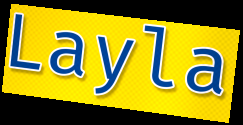
Layla